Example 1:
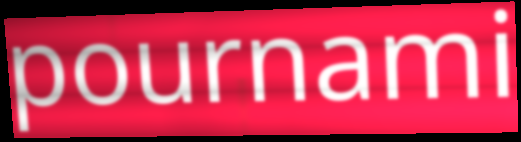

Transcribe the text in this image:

pournami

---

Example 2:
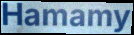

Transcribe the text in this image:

Hamamy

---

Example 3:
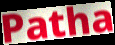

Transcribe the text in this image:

Patha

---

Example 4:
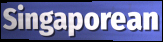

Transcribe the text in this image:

Singaporean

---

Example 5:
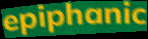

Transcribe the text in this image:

epiphanic